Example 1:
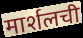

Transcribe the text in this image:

मार्शलची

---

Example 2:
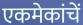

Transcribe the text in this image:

एकमेकांचें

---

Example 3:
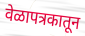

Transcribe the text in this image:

वेळापत्रकातून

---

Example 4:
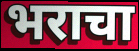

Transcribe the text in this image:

भराचा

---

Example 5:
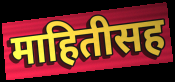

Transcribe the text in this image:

माहितीसह